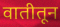
वातीतून